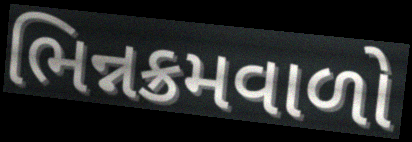
ભિન્નક્રમવાળો